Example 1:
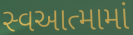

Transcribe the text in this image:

સ્વઆત્મામાં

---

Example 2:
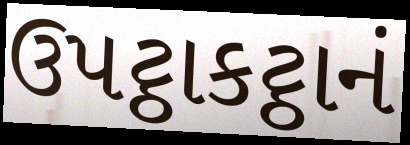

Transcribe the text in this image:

ઉપટ્ઠાકટ્ઠાનં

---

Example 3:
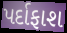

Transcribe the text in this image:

પર્દાફાશ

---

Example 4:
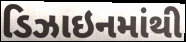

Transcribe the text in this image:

ડિઝાઇનમાંથી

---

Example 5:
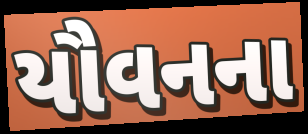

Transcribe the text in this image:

યૌવનના